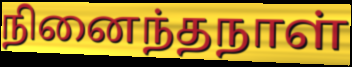
நினைந்தநாள்